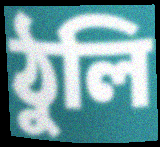
ঠুলি